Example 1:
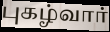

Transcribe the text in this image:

புகழ்வார்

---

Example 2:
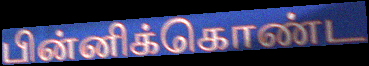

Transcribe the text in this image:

பின்னிக்கொண்ட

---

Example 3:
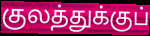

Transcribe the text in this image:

குலத்துக்குப்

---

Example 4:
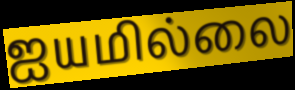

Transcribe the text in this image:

ஐயமில்லை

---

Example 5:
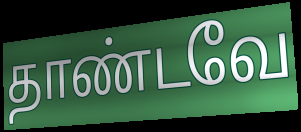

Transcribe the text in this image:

தாண்டவே